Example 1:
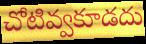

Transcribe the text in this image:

చోటివ్వకూడదు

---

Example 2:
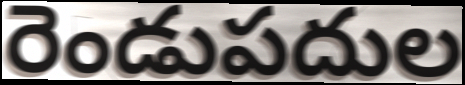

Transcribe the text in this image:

రెండుపదుల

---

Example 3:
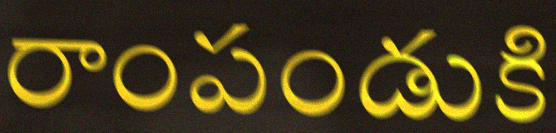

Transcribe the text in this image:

రాంపండుకి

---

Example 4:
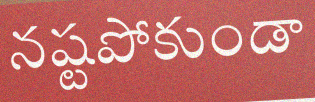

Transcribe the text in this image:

నష్టపోకుండా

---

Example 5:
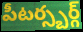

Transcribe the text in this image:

పీటర్స్బర్గ్